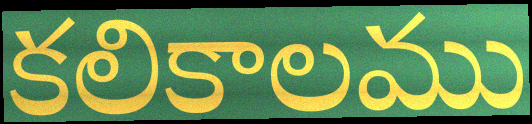
కలికాలము